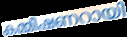
കമ്മീഷണറായി